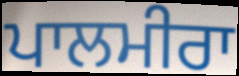
ਪਾਲਮੀਰਾ